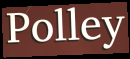
Polley